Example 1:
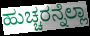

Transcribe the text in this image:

ಹುಚ್ಚರನ್ನೆಲ್ಲಾ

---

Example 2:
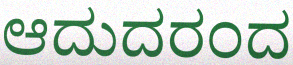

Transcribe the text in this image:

ಆದುದರಂದ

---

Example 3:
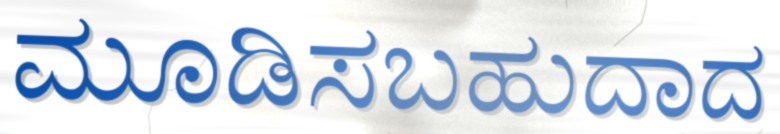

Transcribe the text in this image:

ಮೂಡಿಸಬಹುದಾದ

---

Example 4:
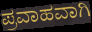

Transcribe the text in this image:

ಪ್ರವಾಹವಾಗಿ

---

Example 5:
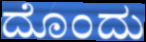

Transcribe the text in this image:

ದೊಂದು